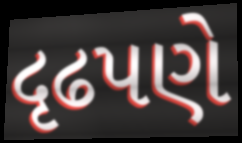
દૃઢપણે